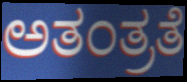
ಅತಂತ್ರತೆ